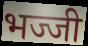
भज्जी